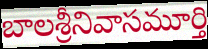
బాలశ్రీనివాసమూర్తి